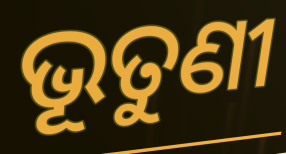
ଭୂତୁଣୀ